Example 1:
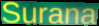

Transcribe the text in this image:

Surana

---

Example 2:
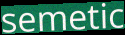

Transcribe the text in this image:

semetic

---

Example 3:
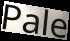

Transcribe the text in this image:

Pale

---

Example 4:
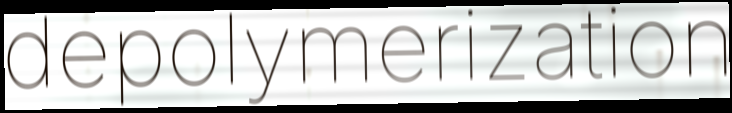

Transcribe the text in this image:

depolymerization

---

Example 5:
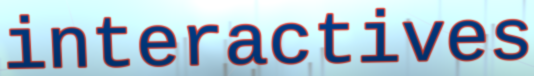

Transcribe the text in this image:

interactives